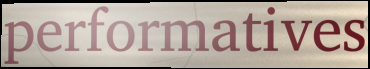
performatives